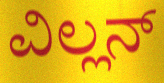
ವಿಲ್ಲನ್